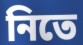
নিতে